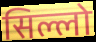
सिल्लो